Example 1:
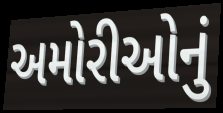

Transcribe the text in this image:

અમોરીઓનું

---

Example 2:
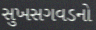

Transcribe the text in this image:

સુખસગવડનો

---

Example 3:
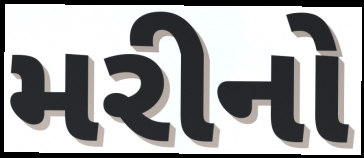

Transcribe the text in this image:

મરીનો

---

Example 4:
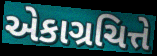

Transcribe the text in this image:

એકાગ્રચિત્તે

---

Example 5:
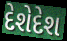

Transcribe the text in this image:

દેશેદેશ